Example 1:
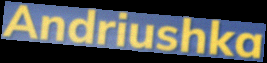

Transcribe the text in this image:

Andriushka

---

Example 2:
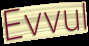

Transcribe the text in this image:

Evvul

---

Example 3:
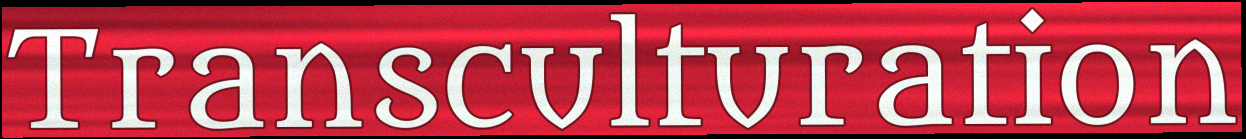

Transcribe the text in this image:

Transculturation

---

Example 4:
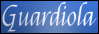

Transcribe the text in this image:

Guardiola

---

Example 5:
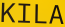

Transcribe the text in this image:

KILA